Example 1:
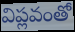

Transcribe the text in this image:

విప్లవంతో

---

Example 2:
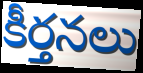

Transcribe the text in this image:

కీర్తనలు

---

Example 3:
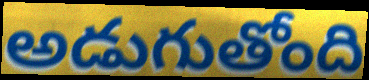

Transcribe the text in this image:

అడుగుతోంది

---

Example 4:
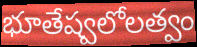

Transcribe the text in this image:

భూతేష్వలోలత్వం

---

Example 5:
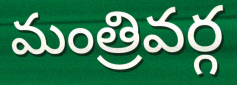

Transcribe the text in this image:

మంత్రివర్గ